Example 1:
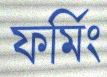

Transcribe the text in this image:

ফর্মিং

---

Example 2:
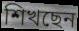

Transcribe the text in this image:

শিখছেন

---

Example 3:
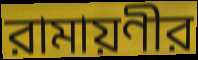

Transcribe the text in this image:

রামায়ণীর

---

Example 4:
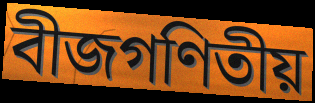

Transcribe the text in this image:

বীজগণিতীয়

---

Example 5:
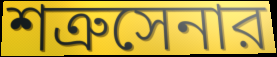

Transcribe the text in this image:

শত্রুসেনার